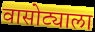
वासोट्याला